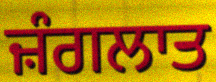
ਜ਼ੰਗਲਾਤ